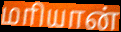
மரியான்